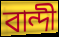
বান্দী